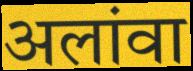
अलांवा